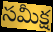
సమీక్ష